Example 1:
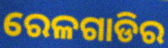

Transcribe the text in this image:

ରେଳଗାଡିର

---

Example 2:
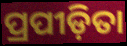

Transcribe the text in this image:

ପ୍ରପୀଡ଼ିତା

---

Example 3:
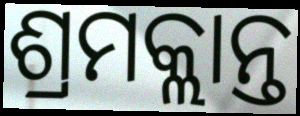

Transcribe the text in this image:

ଶ୍ରମକ୍ଲାନ୍ତ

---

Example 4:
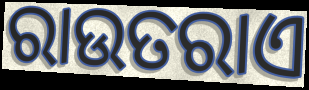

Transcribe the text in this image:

ରାଉତରାଏ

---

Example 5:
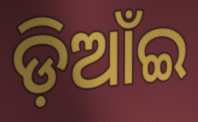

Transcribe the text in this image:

ଡ଼ିଆଁଇ